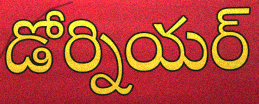
డోర్నియర్